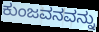
ಕುಂಜವನವನ್ನು